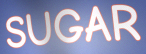
SUGAR